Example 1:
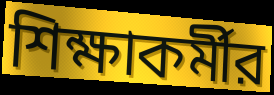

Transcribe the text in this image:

শিক্ষাকর্মীর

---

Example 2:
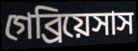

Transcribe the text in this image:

গেব্রিয়েসাস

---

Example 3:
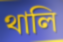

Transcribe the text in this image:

থালি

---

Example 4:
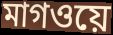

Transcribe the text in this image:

মাগওয়ে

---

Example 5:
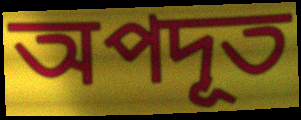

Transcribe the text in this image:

অপদূত